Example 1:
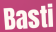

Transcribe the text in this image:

Basti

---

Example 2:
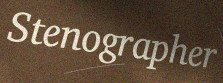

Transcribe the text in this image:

Stenographer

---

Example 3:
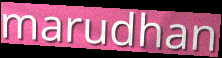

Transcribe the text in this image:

marudhan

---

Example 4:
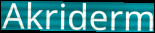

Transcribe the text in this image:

Akriderm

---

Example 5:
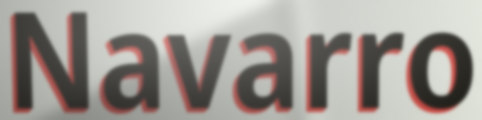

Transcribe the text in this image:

Navarro